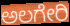
ಅಲಗೇರಿ